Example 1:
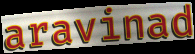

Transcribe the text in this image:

aravinad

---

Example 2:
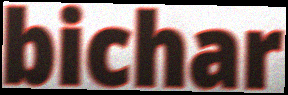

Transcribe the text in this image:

bichar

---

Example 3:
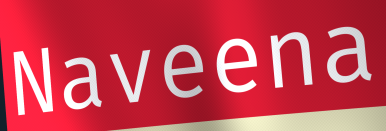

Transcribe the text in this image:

Naveena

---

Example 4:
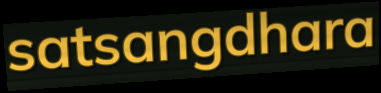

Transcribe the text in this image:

satsangdhara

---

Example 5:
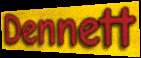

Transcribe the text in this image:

Dennett